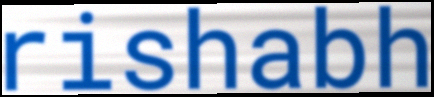
rishabh